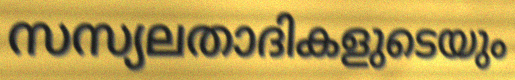
സസ്യലതാദികളുടെയും